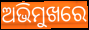
ଅଭିମୁଖରେ